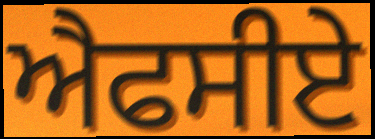
ਐਫਸੀਏ